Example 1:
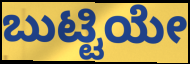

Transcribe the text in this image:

ಬುಟ್ಟಿಯೇ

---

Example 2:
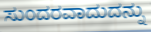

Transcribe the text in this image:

ಸುಂದರವಾದುದನ್ನು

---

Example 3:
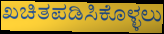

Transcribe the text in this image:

ಖಚಿತಪಡಿಸಿಕೊಳ್ಳಲು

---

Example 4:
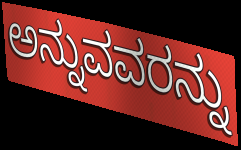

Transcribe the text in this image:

ಅನ್ನುವವರನ್ನು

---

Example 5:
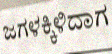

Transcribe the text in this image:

ಜಗಳಕ್ಕಿಳಿದಾಗ